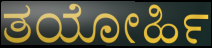
ತಯೋರ್ಹಿ